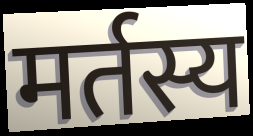
मर्तस्य